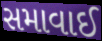
સમાવાઈ